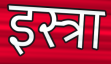
इस्त्रा